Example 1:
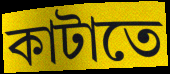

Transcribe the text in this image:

কাটাতে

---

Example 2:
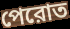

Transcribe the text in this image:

পেরোত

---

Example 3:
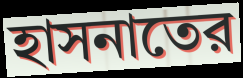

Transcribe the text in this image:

হাসনাতের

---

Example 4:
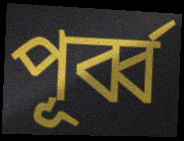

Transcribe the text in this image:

পূর্ব্ব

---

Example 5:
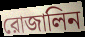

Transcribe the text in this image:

রোজালিন